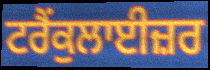
ਟਰੈਂਕੁਲਾਈਜ਼ਰ